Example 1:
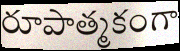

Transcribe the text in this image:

రూపాత్మకంగా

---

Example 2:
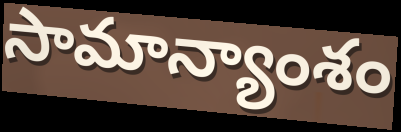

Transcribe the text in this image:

సామాన్యాంశం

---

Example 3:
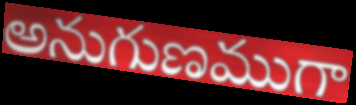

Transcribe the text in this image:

అనుగుణముగా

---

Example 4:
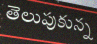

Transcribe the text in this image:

తెలుపుకున్న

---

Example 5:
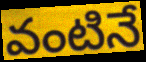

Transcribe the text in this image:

వంటినే